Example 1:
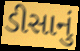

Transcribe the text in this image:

ડીસાનું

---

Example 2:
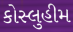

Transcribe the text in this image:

કોસ્લુહીમ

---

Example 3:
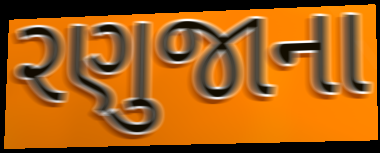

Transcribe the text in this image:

રણુજાના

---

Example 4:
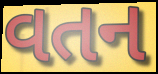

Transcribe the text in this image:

વતન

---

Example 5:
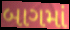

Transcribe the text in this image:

બાગમાં